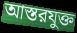
আস্তরযুক্ত